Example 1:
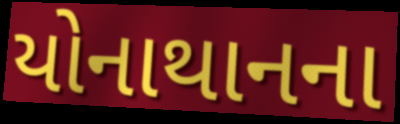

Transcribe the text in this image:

યોનાથાનના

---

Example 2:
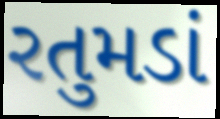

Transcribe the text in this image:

રતુમડાં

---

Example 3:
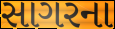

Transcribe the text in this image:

સાગરના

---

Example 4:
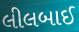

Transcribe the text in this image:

લીલબાઈ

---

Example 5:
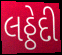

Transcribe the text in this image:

લઠ્ઠેદી